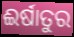
ଈର୍ଷାତୁର